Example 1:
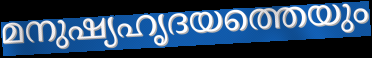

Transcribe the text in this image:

മനുഷ്യഹൃദയത്തെയും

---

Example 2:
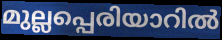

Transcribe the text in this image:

മുല്ലപ്പെരിയാറിൽ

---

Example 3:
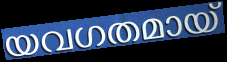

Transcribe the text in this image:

യവഗതമായ്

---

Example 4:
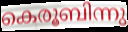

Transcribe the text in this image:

കെരൂബിന്നു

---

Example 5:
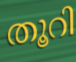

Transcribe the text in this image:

തൂറി